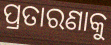
ପ୍ରତାରଣାକୁ